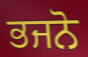
ਭਜਨੋ